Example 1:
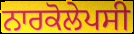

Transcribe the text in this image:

ਨਾਰਕੋਲੇਪਸੀ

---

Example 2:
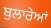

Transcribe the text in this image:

ਬੁਲਾਰੇਆਂ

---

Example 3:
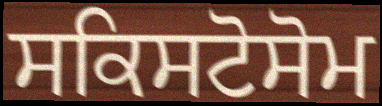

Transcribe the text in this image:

ਸਕਿਸਟੋਸੋਮ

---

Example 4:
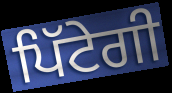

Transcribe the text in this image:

ਪਿੱਟੇਗੀ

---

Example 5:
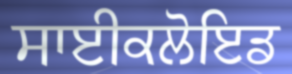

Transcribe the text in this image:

ਸਾਈਕਲੋਇਡ